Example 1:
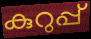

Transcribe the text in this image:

കുറുപ്പ്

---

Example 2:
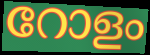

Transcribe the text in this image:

റോളം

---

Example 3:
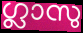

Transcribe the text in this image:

ഗ്ലാസു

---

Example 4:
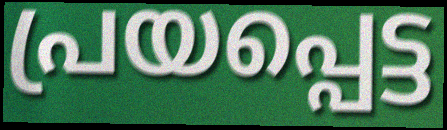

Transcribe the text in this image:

പ്രയപ്പെട്ട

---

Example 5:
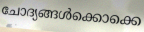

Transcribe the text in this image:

ചോദ്യങ്ങൾക്കൊക്കെ